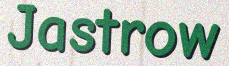
Jastrow